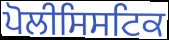
ਪੋਲੀਸਿਸਟਿਕ